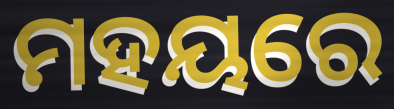
ମହୟରେ